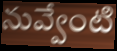
నువ్వేంటి